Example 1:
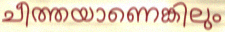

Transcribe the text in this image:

ചീത്തയാണെങ്കിലും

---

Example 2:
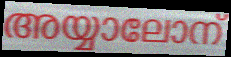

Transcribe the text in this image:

അയ്യാലോന്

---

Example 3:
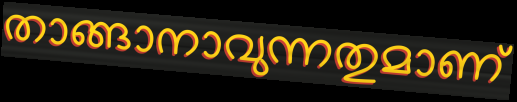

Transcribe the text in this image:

താങ്ങാനാവുന്നതുമാണ്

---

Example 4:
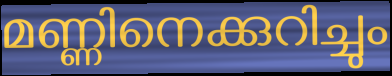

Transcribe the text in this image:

മണ്ണിനെക്കുറിച്ചും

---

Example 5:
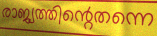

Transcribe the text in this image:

രാജ്യത്തിന്റെതന്നെ